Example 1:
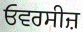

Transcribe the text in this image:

ਓਵਰਸੀਜ਼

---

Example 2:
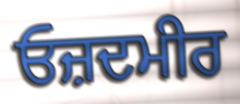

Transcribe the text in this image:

ਓਜ਼ਦਮੀਰ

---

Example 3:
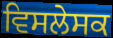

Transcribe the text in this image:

ਵਿਸਲੇਸਕ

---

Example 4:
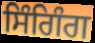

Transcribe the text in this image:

ਸਿੰਗਿੰਗ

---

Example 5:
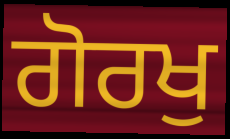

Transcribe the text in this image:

ਗੋਰਖੁ